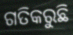
ଗତିକରୁଛି